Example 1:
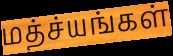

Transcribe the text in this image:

மத்ச்யங்கள்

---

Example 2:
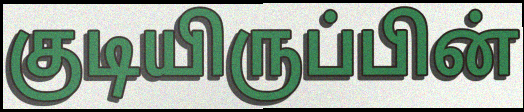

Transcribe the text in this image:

குடியிருப்பின்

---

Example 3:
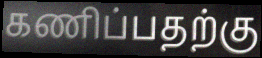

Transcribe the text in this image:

கணிப்பதற்கு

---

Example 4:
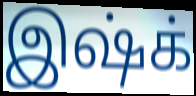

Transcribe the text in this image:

இஷ்க்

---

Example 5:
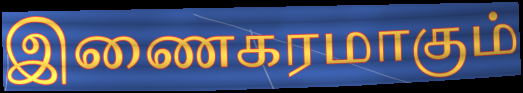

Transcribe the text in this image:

இணைகரமாகும்